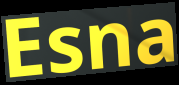
Esna